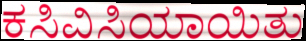
ಕಸಿವಿಸಿಯಾಯಿತು